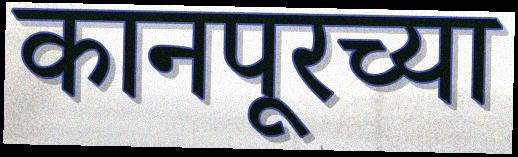
कानपूरच्या